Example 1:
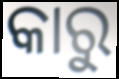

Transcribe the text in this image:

କାରୁ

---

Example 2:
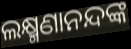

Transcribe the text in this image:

ଲକ୍ଷ୍ମଣାନନ୍ଦଙ୍କ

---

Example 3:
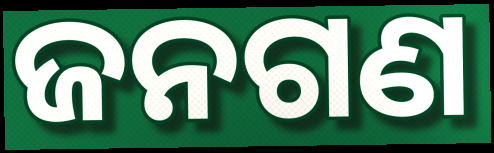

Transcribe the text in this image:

ଜନଗଣ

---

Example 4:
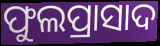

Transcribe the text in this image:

ଫୁଲପ୍ରାସାଦ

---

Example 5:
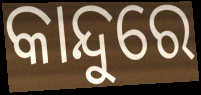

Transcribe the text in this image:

କାନ୍ଦୁରେ